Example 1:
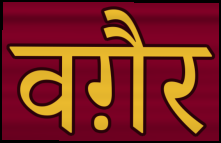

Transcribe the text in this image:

वग़ैर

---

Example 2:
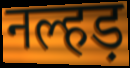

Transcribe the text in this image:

नल्हड़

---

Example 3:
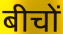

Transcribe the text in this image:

बीचों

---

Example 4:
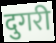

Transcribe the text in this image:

दुगरी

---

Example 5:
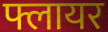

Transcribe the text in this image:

फ्लायर